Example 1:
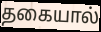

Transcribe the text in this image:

தகையால்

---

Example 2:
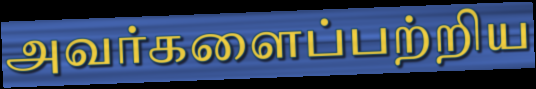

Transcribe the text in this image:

அவர்களைப்பற்றிய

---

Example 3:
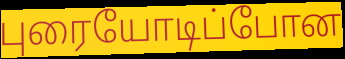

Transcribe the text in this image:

புரையோடிப்போன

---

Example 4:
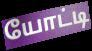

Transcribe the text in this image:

யோட்டி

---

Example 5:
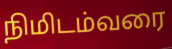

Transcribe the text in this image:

நிமிடம்வரை